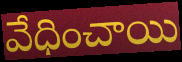
వేధించాయి